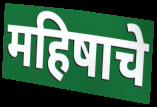
महिषाचे